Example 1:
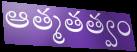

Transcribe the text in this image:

ఆత్మతత్వం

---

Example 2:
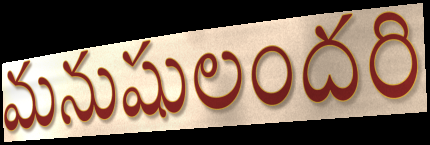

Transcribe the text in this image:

మనుషులందరి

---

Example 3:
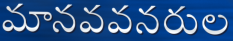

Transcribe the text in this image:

మానవవనరుల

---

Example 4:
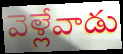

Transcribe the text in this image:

వెళ్లేవాడు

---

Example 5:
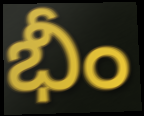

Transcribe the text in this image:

భీం